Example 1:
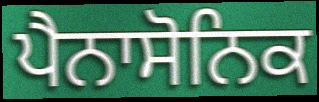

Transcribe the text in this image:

ਪੈਨਾਸੋਨਿਕ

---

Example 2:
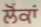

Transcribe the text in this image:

ਲੋਂਕਾਂ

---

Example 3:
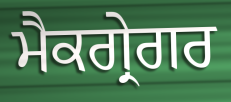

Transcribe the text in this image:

ਮੈਕਗ੍ਰੇਗਰ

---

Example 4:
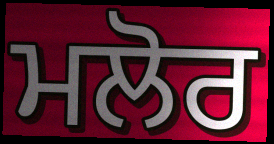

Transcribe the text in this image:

ਮਲੋਰ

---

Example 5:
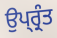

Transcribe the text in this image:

ਉਪ੍ਰ੍ਰੰਤ